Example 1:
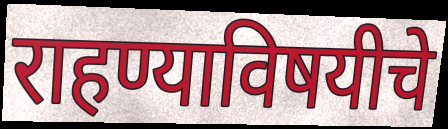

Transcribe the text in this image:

राहण्याविषयीचे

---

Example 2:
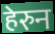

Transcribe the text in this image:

हेरुन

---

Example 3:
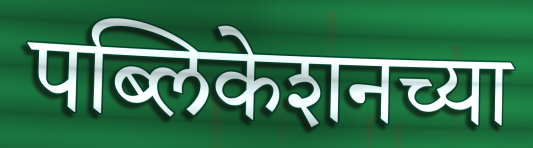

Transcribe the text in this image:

पब्लिकेशनच्या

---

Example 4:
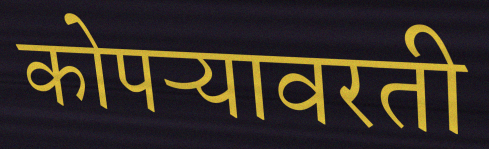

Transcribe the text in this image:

कोपऱ्यावरती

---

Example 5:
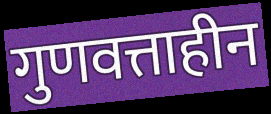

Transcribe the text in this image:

गुणवत्ताहीन